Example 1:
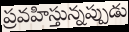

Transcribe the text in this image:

ప్రవహిస్తున్నప్పుడు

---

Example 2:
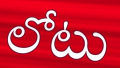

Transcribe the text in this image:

లోటు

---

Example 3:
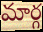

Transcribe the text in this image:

మార్గ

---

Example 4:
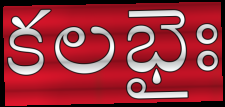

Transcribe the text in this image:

కలభైః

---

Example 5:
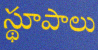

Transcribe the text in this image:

స్థూపాలు